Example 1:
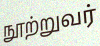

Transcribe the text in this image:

நூற்றுவர்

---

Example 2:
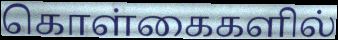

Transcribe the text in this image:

கொள்கைகளில்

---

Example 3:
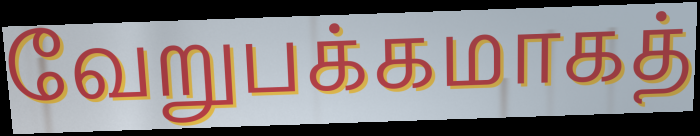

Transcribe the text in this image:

வேறுபக்கமாகத்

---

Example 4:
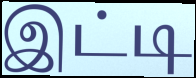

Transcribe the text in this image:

இட்டி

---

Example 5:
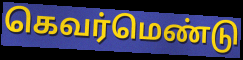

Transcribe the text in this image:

கெவர்மெண்டு